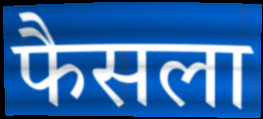
फैसला